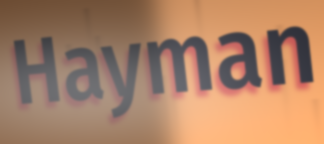
Hayman